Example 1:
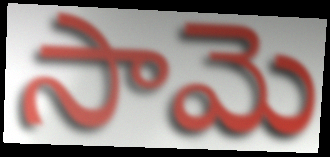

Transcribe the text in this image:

సామె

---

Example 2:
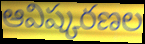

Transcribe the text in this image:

ఆవిష్కరణల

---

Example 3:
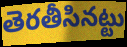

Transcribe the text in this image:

తెరతీసినట్టు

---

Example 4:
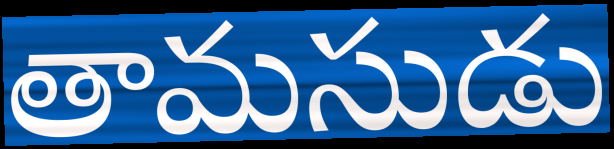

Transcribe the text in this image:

తామసుడు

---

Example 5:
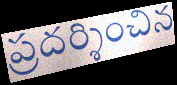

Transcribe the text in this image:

ప్రదర్శించిన